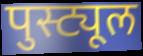
पुस्ट्यूल